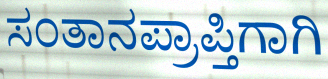
ಸಂತಾನಪ್ರಾಪ್ತಿಗಾಗಿ